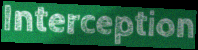
Interception